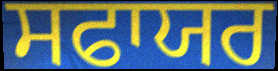
ਸਫਾਯਰ